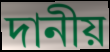
দানীয়